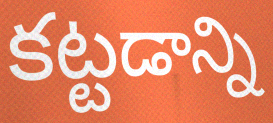
కట్టడాన్ని